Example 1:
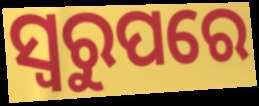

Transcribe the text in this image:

ସ୍ୱରୁପରେ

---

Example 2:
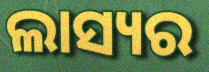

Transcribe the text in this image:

ଲାସ୍ୟର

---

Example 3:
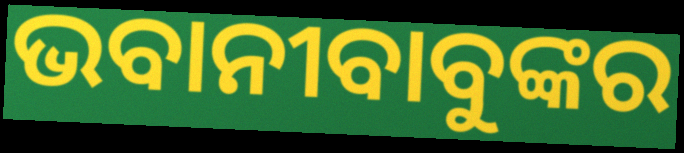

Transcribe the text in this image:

ଭବାନୀବାବୁଙ୍କର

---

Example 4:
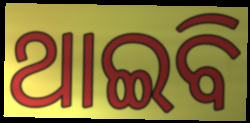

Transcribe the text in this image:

ଥାଇବି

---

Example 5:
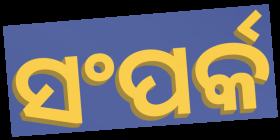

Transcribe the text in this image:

ସଂପର୍କ